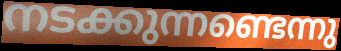
നടക്കുന്നണ്ടെന്നു